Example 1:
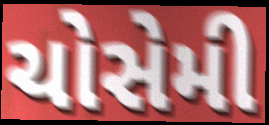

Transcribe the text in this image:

ચોસેમી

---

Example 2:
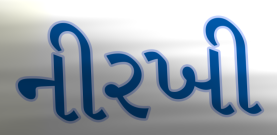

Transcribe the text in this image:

નીરખી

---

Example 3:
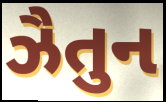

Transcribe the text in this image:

ઝૈતુન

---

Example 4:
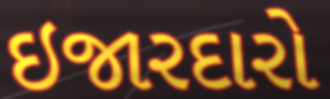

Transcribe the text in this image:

ઇજારદારો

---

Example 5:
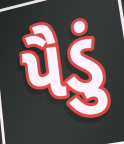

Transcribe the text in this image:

પૈડું